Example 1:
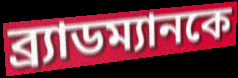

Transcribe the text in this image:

ব্র্যাডম্যানকে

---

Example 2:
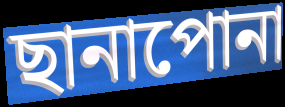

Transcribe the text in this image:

ছানাপোনা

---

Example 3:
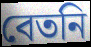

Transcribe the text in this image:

বেতনি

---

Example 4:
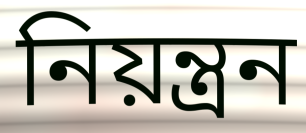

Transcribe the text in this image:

নিয়ন্ত্রন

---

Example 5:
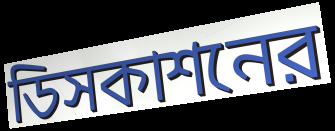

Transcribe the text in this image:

ডিসকাশনের